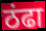
ठंढा